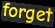
forget